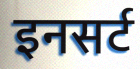
इनसर्ट